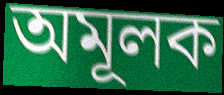
অমূলক